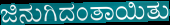
ಜಿನುಗಿದಂತಾಯಿತು